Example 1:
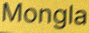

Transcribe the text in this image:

Mongla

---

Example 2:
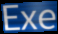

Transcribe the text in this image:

Exe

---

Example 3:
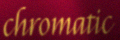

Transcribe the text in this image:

chromatic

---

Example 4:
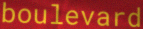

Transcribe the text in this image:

boulevard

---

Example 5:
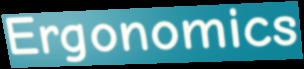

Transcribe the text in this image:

Ergonomics